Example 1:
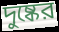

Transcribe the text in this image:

দুষ্কের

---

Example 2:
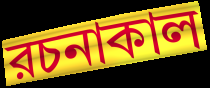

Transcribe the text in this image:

রচনাকাল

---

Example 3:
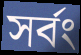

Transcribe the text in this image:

সর্বং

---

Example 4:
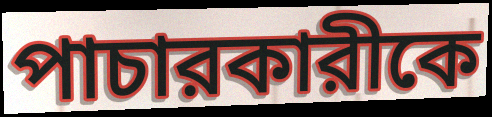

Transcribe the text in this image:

পাচারকারীকে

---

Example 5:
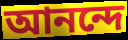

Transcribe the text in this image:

আনন্দে